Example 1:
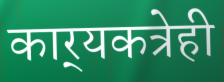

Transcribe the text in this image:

कार्यकत्रेही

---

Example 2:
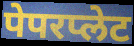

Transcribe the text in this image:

पेपरप्लेट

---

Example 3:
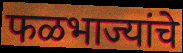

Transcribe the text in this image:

फळभाज्यांचे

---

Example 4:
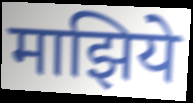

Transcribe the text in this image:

माझिये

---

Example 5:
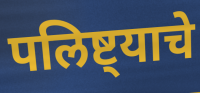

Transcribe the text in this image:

पलिष्ट्याचे